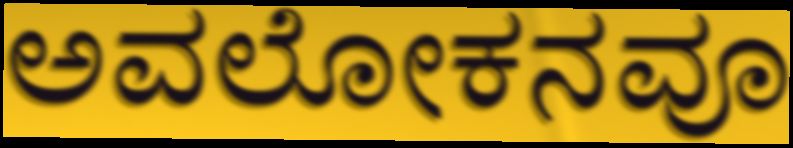
ಅವಲೋಕನವೂ